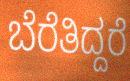
ಬೆರೆತಿದ್ದರೆ